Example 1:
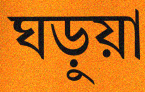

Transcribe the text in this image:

ঘড়ুয়া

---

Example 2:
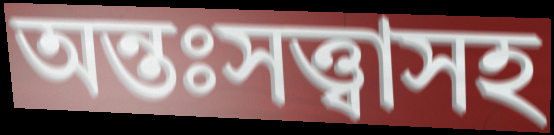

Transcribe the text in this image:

অন্তঃসত্ত্বাসহ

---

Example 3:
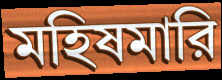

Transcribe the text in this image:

মহিষমারি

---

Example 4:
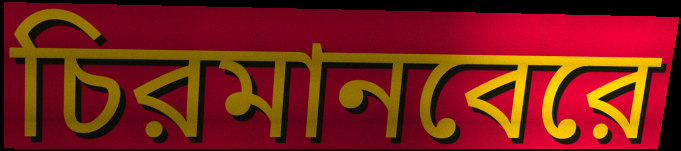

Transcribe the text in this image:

চিরমানবেরে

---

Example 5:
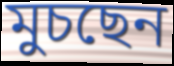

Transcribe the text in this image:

মুচছেন